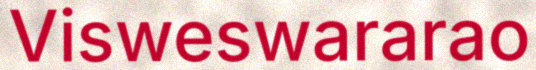
Visweswararao